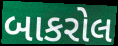
બાકરોલ